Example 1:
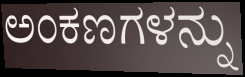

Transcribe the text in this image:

ಅಂಕಣಗಳನ್ನು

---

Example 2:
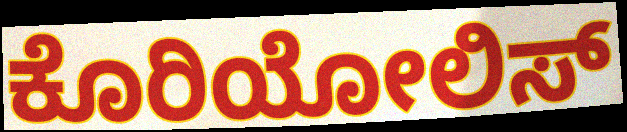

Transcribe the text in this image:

ಕೊರಿಯೋಲಿಸ್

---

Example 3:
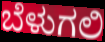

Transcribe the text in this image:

ಬೆಳುಗಲಿ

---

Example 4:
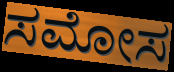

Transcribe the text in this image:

ಸಮೋಸ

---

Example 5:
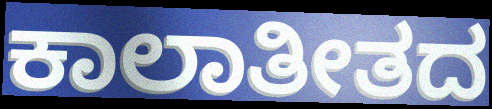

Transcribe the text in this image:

ಕಾಲಾತೀತದ